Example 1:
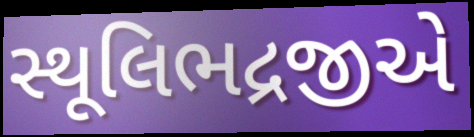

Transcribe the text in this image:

સ્થૂલિભદ્રજીએ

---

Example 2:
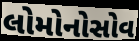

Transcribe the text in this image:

લોમોનોસોવ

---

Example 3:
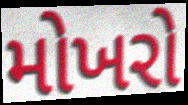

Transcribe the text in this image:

મોખરો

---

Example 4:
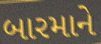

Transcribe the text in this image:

બારમાને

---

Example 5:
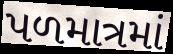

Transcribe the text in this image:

પળમાત્રમાં